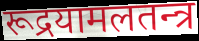
रूद्रयामलतन्त्र